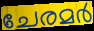
ചേരമർ